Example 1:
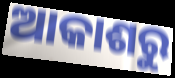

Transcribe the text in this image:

ଆକାଶରୁ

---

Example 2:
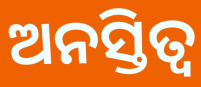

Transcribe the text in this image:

ଅନସ୍ତିତ୍ୱ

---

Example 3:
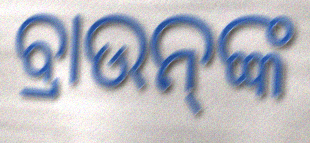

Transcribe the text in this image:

ବ୍ରାଉନ୍‌ଙ୍କ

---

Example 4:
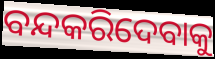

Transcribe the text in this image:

ବନ୍ଦକରିଦେବାକୁ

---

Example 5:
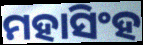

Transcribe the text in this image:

ମହାସିଂହ